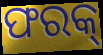
ଫରକ୍